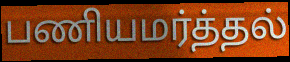
பணியமர்த்தல்